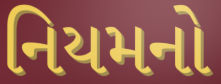
નિયમનો